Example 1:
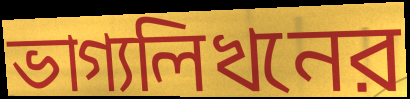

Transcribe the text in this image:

ভাগ্যলিখনের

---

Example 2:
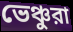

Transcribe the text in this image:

ভেঞ্চুরা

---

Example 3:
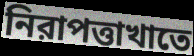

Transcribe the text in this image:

নিরাপত্তাখাতে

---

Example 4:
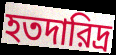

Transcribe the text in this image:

হতদারিদ্র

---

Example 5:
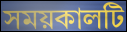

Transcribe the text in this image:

সময়কালটি